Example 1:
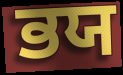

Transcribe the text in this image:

ਭਯ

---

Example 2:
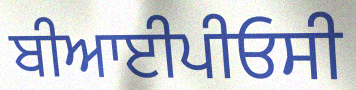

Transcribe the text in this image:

ਬੀਆਈਪੀਓਸੀ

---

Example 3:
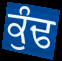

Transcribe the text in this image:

ਕੁੰਢ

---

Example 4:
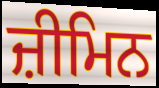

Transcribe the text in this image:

ਜ਼ੀਮਿਨ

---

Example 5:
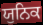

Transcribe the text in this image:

ਯੁਨਿਕ